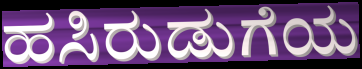
ಹಸಿರುಡುಗೆಯ